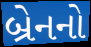
બ્રેનનો